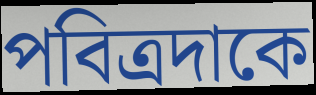
পবিত্রদাকে